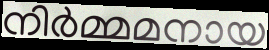
നിർമ്മമനായ